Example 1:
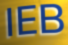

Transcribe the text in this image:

IEB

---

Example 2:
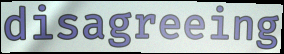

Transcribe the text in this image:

disagreeing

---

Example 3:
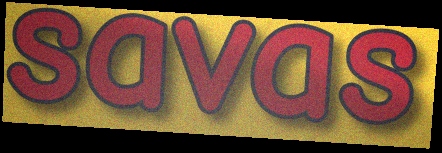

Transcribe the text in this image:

savas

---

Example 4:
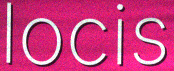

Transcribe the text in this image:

locis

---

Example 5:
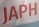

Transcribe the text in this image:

JAPH